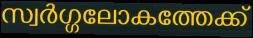
സ്വർഗ്ഗലോകത്തേക്ക്